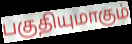
பகுதியுமாகும்